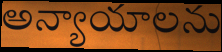
అన్యాయాలను